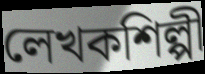
লেখকশিল্পী